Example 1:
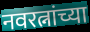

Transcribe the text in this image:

नवरत्नांच्या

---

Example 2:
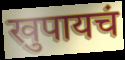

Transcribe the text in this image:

खुपायचं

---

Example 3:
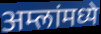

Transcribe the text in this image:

अम्लांमध्ये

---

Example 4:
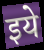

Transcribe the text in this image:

इये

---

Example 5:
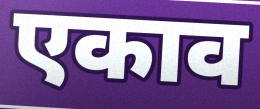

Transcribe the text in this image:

एकाव